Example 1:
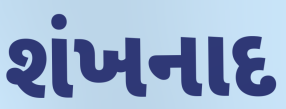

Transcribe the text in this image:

શંખનાદ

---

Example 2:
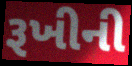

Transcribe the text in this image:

રૂખીની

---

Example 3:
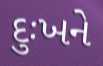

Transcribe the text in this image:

દુઃખને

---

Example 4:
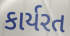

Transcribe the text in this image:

કાર્યરત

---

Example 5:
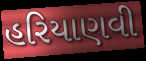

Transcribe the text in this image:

હરિયાણવી